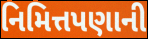
નિમિત્તપણાની